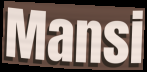
Mansi